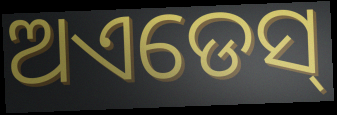
ଅଏଡେସ୍